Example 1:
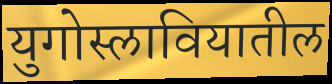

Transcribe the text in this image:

युगोस्लावियातील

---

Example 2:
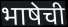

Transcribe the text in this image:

भाषेची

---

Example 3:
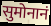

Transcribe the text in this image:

सुमोनानं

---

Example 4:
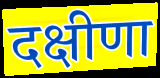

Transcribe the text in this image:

दक्षीणा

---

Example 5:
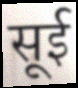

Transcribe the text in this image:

सूई